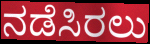
ನಡೆಸಿರಲು